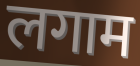
लगाम